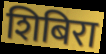
शिबिरा